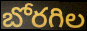
బోరగిల